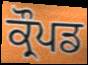
ਕ੍ਰੌਪਡ